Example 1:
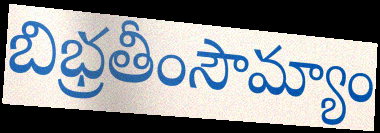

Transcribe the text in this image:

బిభ్రతీంసౌమ్యాం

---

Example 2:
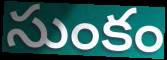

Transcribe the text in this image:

సుంకం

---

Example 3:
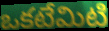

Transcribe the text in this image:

ఒకటేమిటి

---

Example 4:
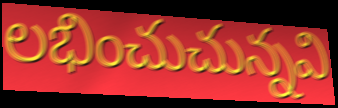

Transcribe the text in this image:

లభించుచున్నవి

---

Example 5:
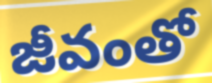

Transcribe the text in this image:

జీవంతో